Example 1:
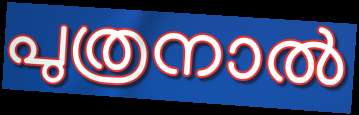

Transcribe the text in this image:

പുത്രനാൽ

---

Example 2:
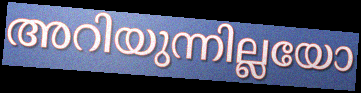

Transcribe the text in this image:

അറിയുന്നില്ലയോ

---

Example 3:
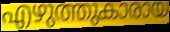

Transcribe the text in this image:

എഴുത്തുകാരായ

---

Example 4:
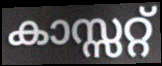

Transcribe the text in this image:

കാസ്സറ്റ്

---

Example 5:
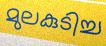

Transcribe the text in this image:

മുലകുടിച്ച